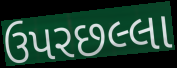
ઉપરછલ્લા